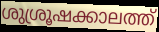
ശുശ്രൂഷക്കാലത്ത്